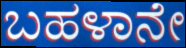
ಬಹಳಾನೇ